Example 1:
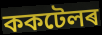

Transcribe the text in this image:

ককটেলৰ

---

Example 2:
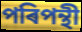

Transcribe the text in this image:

পৰিপন্থী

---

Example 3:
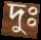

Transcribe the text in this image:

দুঃ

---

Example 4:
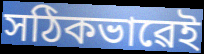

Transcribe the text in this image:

সঠিকভাৱেই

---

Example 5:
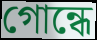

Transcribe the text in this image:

গোন্ধে